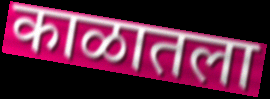
काळातला